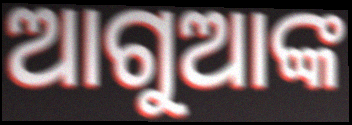
ଆଗୁଆଙ୍କ